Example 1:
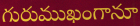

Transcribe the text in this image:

గురుముఖంగానూ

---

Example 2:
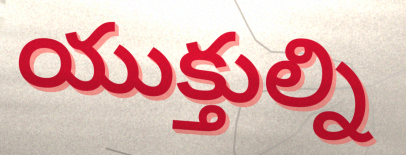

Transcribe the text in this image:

యుక్తుల్ని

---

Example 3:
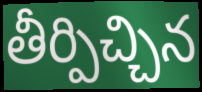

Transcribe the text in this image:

తీర్పిచ్చిన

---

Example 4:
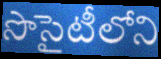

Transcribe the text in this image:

సొసైటీలోని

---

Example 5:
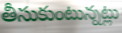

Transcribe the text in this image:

తీసుకుంటున్నట్లు